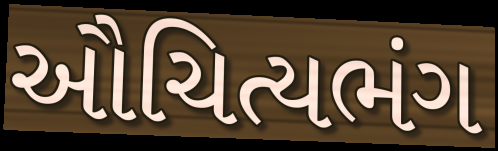
ઔચિત્યભંગ